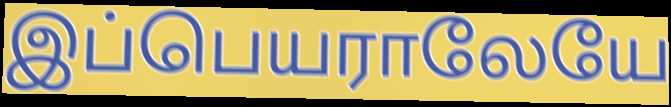
இப்பெயராலேயே